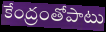
కేంద్రంతోపాటు